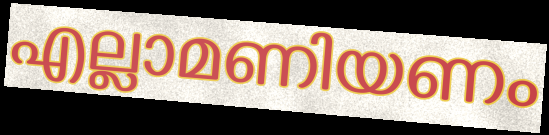
എല്ലാമണിയണം